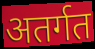
अतर्गत